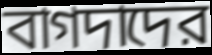
বাগদাদের